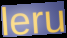
leru